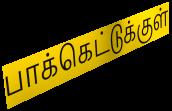
பாக்கெட்டுக்குள்